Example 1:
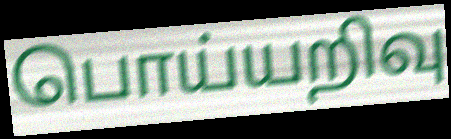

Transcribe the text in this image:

பொய்யறிவு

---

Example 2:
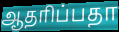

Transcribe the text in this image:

ஆதரிப்பதா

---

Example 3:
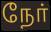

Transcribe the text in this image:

நேர்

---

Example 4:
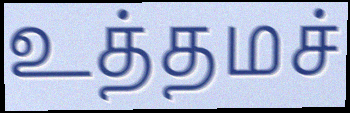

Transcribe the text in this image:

உத்தமச்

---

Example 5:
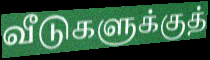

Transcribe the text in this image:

வீடுகளுக்குத்